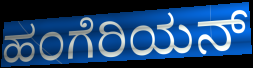
ಹಂಗೆರಿಯನ್